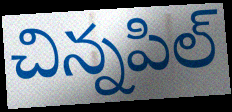
చిన్నపిల్